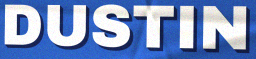
DUSTIN